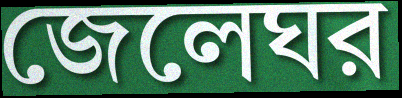
জেলেঘর